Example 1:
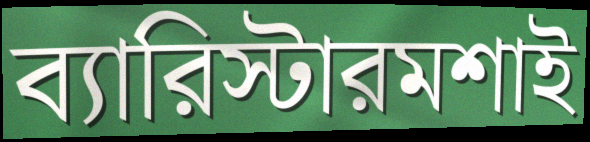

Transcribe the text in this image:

ব্যারিস্টারমশাই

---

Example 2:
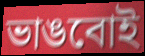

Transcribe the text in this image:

ভাঙবোই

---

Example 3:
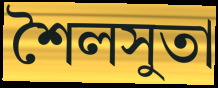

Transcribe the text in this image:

শৈলসুতা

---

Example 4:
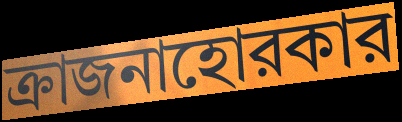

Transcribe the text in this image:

ক্রাজনাহোরকার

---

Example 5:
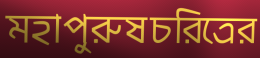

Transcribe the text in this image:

মহাপুরুষচরিত্রের